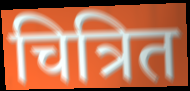
चित्रित